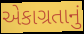
એકાગ્રતાનું